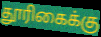
தூரிகைக்கு